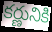
కర్ణునికి